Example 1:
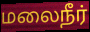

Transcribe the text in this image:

மலைநீர்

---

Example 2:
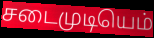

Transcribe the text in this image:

சடைமுடியெம்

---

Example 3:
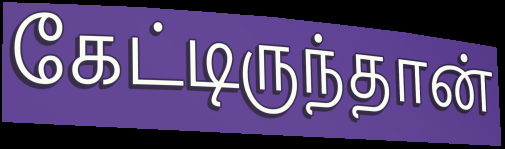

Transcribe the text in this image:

கேட்டிருந்தான்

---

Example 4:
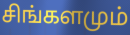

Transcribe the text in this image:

சிங்களமும்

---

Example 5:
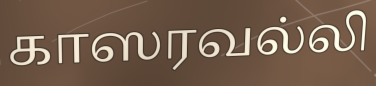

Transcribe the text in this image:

காஸரவல்லி